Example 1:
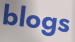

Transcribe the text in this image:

blogs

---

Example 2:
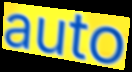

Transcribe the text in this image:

auto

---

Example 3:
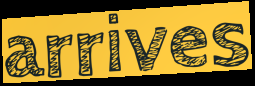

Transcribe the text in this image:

arrives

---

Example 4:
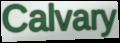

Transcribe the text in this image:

Calvary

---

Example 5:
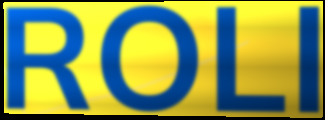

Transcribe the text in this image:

ROLI